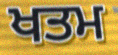
ਖਤਮ